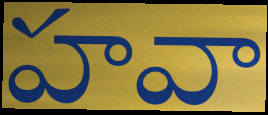
హవా